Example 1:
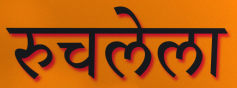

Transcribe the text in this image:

रुचलेला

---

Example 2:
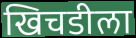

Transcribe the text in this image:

खिचडीला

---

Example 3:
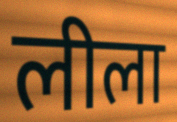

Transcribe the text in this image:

लीला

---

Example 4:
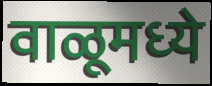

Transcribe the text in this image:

वाळूमध्ये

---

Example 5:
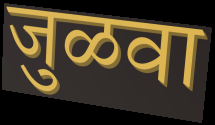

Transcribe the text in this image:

जुळवा